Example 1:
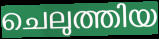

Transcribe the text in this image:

ചെലുത്തിയ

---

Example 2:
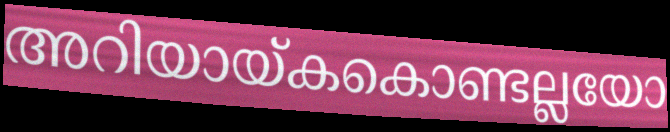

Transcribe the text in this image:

അറിയായ്കകൊണ്ടല്ലയോ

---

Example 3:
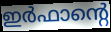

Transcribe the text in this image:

ഇർഫാന്റെ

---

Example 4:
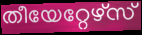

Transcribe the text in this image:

തീയേറ്റേഴ്സ്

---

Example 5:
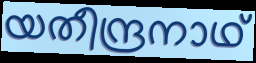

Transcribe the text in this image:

യതീന്ദ്രനാഥ്